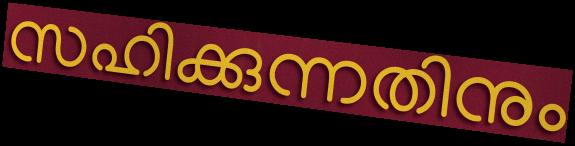
സഹിക്കുന്നതിനും